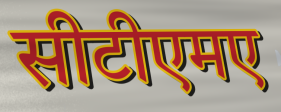
सीटीएमए